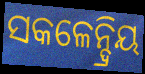
ସକଳେନ୍ଦ୍ରିୟ